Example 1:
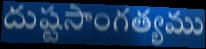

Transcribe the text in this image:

దుష్టసాంగత్యము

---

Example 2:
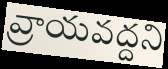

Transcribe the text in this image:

వ్రాయవద్దని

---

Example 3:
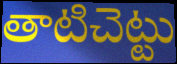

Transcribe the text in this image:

తాటిచెట్టు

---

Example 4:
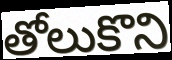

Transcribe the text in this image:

తోలుకొని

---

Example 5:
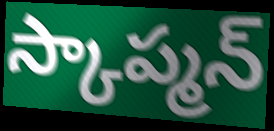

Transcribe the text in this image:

స్కాప్మన్